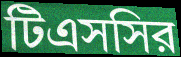
টিএসসির